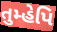
તુમ્હેપિ